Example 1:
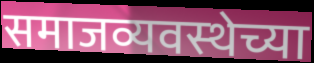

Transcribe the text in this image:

समाजव्यवस्थेच्या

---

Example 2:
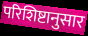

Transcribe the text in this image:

परिशिष्टानुसार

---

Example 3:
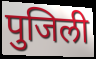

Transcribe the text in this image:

पुजिली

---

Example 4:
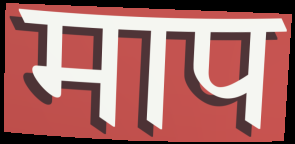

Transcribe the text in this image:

माप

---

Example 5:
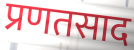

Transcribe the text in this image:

प्रणतसाद